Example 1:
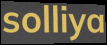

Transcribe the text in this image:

solliya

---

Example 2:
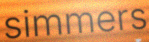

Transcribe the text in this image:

simmers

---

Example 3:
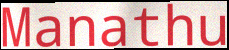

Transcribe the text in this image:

Manathu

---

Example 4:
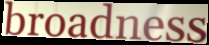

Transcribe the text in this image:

broadness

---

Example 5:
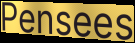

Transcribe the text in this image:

Pensees